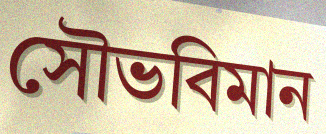
সৌভবিমান